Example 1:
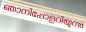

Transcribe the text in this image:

ഞാനിപ്പോളറിയുന്നു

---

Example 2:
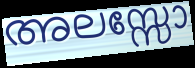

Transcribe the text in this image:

അലസ്സോ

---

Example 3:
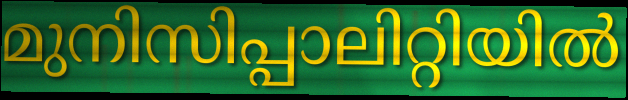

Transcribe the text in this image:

മുനിസിപ്പാലിറ്റിയിൽ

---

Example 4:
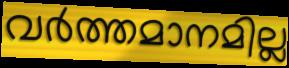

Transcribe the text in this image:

വർത്തമാനമില്ല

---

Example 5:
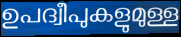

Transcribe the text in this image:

ഉപദ്വീപുകളുമുള്ള